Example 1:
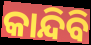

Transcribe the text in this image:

କାନ୍ଦିବି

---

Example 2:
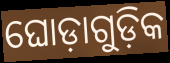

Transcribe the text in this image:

ଘୋଡ଼ାଗୁଡ଼ିକ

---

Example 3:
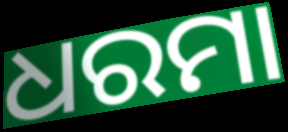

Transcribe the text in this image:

ଧରମା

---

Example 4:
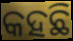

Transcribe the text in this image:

କହଛି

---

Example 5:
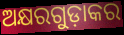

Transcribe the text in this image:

ଅକ୍ଷରଗୁଡ଼ାକର